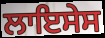
ਲਾਇਸੇਸ